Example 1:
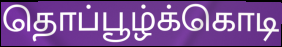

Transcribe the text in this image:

தொப்பூழ்க்கொடி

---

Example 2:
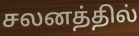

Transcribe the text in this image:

சலனத்தில்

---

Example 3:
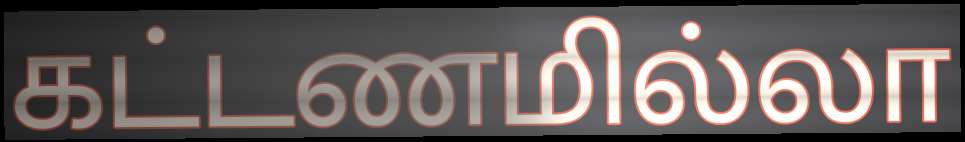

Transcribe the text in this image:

கட்டணமில்லா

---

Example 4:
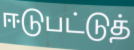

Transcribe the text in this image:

ஈடுபட்டுத்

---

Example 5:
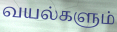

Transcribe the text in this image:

வயல்களும்